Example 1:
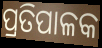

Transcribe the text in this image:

ପ୍ରତିପାଳକ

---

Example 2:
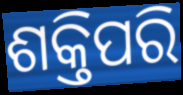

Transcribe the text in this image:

ଶକ୍ତିପରି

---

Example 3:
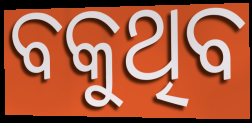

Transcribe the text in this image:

ବକୁଥିବ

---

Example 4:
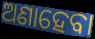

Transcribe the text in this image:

ଅଣାହେବା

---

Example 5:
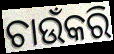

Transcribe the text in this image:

ଚାଉଁକରି